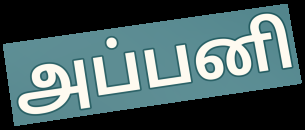
அப்பனி